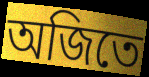
অজিতে